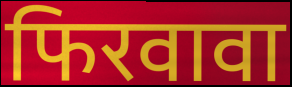
फिरवावा